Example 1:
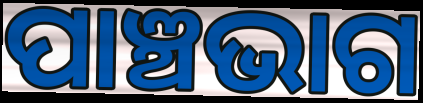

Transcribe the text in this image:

ପାଞ୍ଚଭାଗ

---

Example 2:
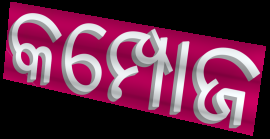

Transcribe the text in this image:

କମ୍ପୋଜ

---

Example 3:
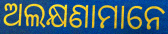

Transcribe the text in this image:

ଅଲକ୍ଷଣାମାନେ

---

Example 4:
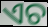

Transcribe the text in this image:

ଏଚ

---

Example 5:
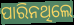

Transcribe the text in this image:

ପାରିନଥିଲେ